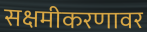
सक्षमीकरणावर